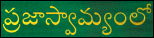
ప్రజాస్వామ్యంలో